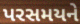
પરસમયને